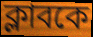
ক্লাবকে